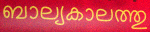
ബാല്യകാലത്തു